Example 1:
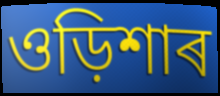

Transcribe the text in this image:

ওড়িশাৰ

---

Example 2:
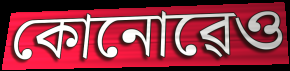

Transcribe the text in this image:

কোনোৱেও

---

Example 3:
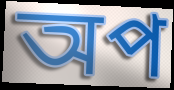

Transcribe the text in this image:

অপ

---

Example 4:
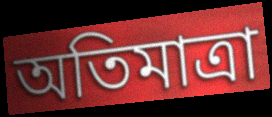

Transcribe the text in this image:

অতিমাত্ৰা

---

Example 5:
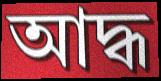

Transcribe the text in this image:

আদ্ধ